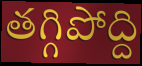
తగ్గిపోద్ది